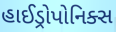
હાઈડ્રોપોનિક્સ